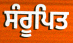
ਸੰਰੂਪਿਤ